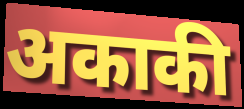
अकाकी